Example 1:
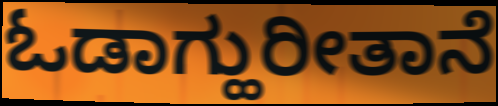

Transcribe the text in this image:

ಓಡಾಗ್ಹುರೀತಾನೆ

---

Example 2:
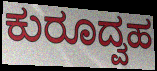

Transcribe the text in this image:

ಕುರೂದ್ವಹ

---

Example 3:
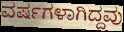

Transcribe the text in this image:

ವರ್ಷಗಳಾಗಿದ್ದವು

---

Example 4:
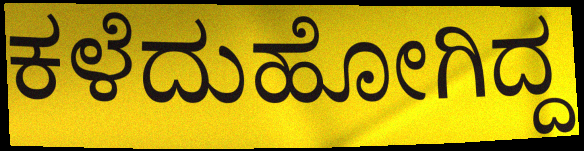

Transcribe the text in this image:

ಕಳೆದುಹೋಗಿದ್ದ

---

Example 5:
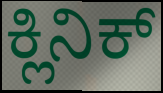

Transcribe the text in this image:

ಕ್ಲಿನಿಕ್